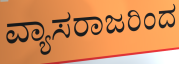
ವ್ಯಾಸರಾಜರಿಂದ